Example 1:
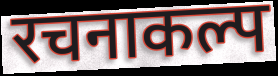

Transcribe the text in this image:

रचनाकल्प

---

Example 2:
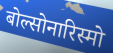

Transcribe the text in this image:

बोल्सोनारिस्मो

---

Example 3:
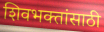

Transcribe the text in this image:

शिवभक्तांसाठी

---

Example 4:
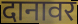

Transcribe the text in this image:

दानावर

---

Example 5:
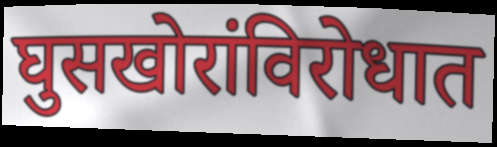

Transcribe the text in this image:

घुसखोरांविरोधात